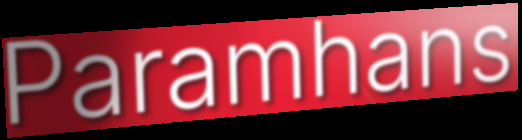
Paramhans